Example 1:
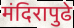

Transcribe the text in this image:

मंदिरापुढे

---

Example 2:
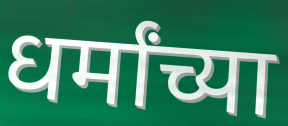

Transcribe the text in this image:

धर्मांच्या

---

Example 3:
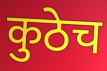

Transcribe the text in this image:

कुठेच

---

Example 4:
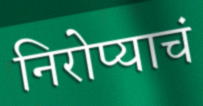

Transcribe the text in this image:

निरोप्याचं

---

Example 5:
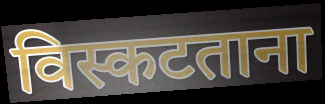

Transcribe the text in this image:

विस्कटताना